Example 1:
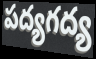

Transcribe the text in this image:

పద్యగద్య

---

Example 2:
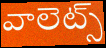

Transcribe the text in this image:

వాలెట్స్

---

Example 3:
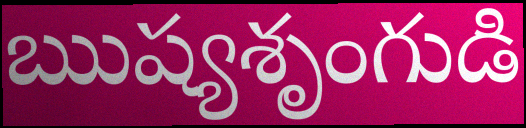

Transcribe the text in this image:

ఋష్యశృంగుడి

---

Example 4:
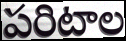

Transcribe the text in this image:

పరిటాల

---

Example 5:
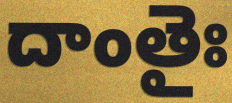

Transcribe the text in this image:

దాంతైః